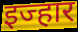
इज्हार